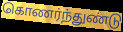
கொணர்ந்துண்டு